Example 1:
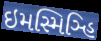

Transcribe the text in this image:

ઇમસ્મિઞ્હિ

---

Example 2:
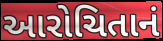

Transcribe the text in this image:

આરોચિતાનં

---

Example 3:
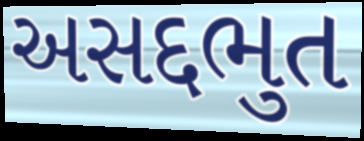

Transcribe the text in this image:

અસદ્દભુત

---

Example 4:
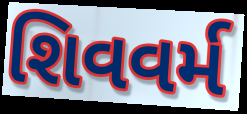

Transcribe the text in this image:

શિવવર્મ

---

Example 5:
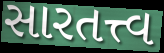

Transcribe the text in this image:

સારતત્ત્વ